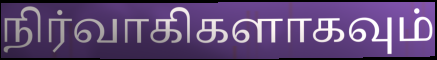
நிர்வாகிகளாகவும்